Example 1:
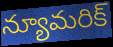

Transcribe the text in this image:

న్యూమరిక్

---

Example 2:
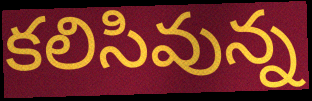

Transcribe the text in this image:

కలిసివున్న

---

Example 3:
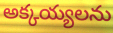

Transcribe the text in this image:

అక్కయ్యలను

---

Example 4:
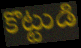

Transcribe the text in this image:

కొట్టుడి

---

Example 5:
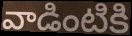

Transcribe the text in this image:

వాడింటికి